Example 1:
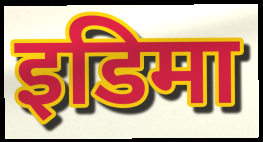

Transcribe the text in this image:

इडिमा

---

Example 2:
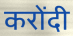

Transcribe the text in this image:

करोंदी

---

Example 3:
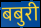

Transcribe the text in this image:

बबुरी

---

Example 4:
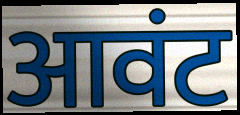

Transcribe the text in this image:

आवंट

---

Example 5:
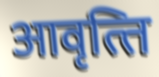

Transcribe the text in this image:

आवृत्‍ति